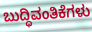
ಬುದ್ಧಿವಂತಿಕೆಗಳು